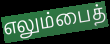
எலும்பைத்